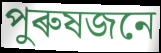
পুৰুষজনে